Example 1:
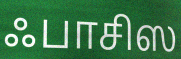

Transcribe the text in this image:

ஃபாசிஸ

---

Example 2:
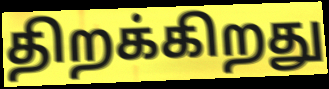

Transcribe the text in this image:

திறக்கிறது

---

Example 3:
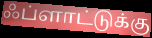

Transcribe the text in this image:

ஃப்ளாட்டுக்கு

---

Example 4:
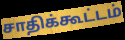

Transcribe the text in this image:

சாதிக்கூட்டம்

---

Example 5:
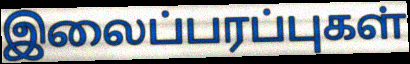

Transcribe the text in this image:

இலைப்பரப்புகள்